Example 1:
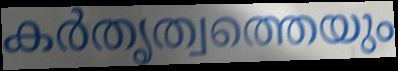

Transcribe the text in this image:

കർതൃത്വത്തെയും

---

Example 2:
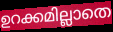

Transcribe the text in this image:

ഉറക്കമില്ലാതെ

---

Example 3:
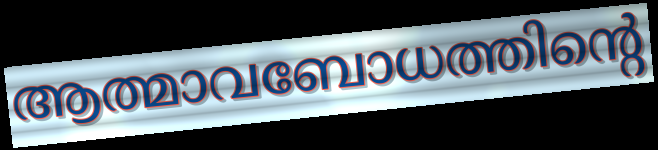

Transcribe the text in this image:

ആത്മാവബോധത്തിന്റെ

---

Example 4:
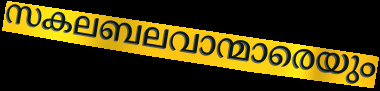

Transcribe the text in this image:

സകലബലവാന്മാരെയും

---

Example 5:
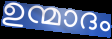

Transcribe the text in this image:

ഉന്മാദം